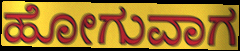
ಹೋಗುವಾಗ